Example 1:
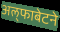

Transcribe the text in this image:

अल्फाबेटने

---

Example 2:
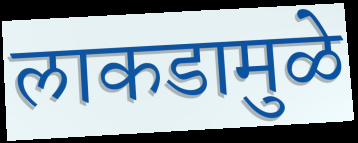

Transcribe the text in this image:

लाकडामुळे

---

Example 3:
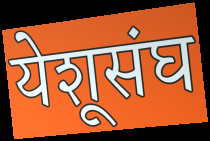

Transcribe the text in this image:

येशूसंघ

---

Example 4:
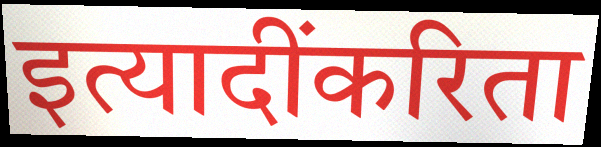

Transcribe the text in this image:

इत्यादींकरिता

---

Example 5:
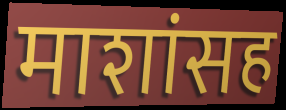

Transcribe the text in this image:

माशांसह